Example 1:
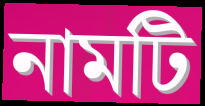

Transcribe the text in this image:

নামটি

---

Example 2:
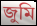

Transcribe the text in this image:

জুমি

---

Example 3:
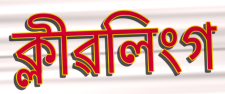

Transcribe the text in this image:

ক্লীৱলিংগ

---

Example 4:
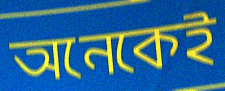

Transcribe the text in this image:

অনেকেই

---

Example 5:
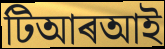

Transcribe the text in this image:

টিআৰআই